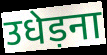
उधेड़ना